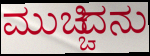
ಮುಚ್ಚಿದನು